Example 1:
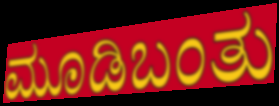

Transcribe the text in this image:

ಮೂಡಿಬಂತು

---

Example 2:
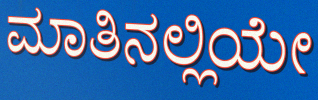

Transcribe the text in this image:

ಮಾತಿನಲ್ಲಿಯೇ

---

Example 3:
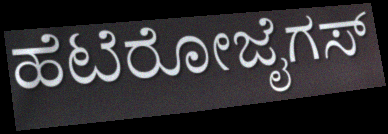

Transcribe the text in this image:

ಹೆಟೆರೋಜೈಗಸ್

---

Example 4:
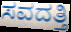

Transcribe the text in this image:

ಸವದತ್ತಿ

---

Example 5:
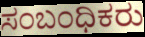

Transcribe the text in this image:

ಸಂಬಂಧಿಕರು